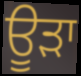
ਊੜਾ